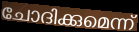
ചോദിക്കുമെന്ന്